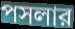
পসলার